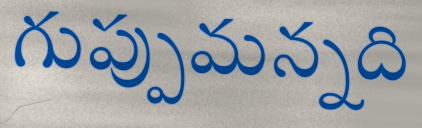
గుప్పుమన్నది